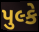
પુલ્કે